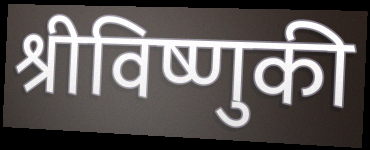
श्रीविष्णुकी